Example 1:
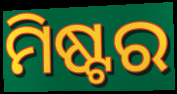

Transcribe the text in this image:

ମିଷ୍ଟର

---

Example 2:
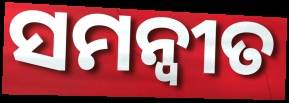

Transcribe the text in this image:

ସମନ୍ଵୀତ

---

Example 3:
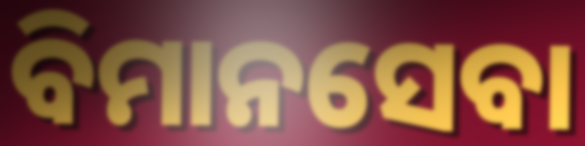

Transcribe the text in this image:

ବିମାନସେବା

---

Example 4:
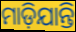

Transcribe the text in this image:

ମାଡ଼ିଯାନ୍ତି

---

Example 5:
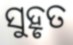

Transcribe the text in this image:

ସୁହୃତ